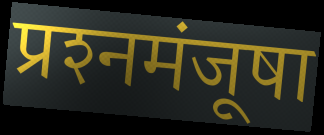
प्रश्नमंजूषा